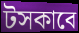
টসকাবে